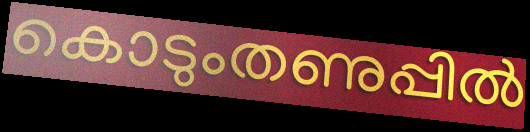
കൊടുംതണുപ്പിൽ